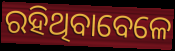
ରହିଥିବାବେଳେ